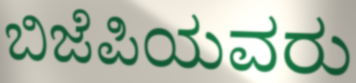
ಬಿಜೆಪಿಯವರು